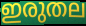
ഇരുതല